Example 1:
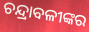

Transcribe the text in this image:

ଚନ୍ଦ୍ରାବଳୀଙ୍କର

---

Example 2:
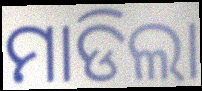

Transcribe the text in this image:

ମାଡିଲା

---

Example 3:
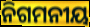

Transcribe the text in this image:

ନିଗମନୀୟ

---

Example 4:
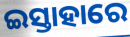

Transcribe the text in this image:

ଇସ୍ତାହାରେ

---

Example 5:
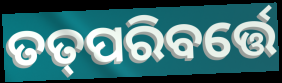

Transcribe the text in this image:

ତତ୍‌ପରିବର୍ତ୍ତେ